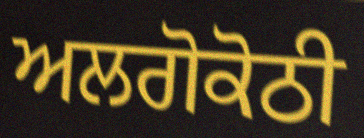
ਅਲਗੋਕੋਠੀ